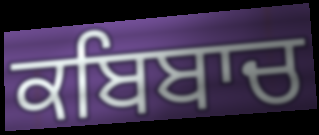
ਕਬਿਬਾਚ